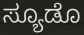
ಸ್ಯೂಡೊ